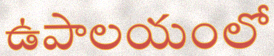
ఉపాలయంలో